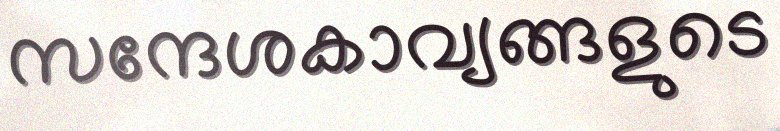
സന്ദേശകാവ്യങ്ങളുടെ